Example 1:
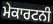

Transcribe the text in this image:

ਮੇਕਾਰਟਨੀ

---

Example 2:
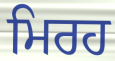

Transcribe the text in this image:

ਮਿਰਹ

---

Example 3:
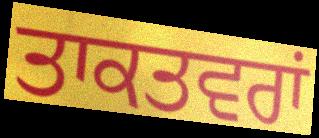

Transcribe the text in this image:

ਤਾਕਤਵਰਾਂ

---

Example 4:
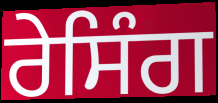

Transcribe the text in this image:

ਰੇਸਿੰਗ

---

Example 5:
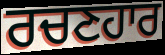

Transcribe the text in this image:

ਰਚਣਹਾਰ